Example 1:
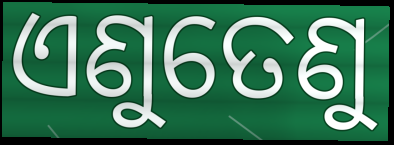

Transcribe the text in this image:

ଏଣୁତେଣୁ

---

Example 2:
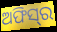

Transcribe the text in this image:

ଅଫିସ୍‌ର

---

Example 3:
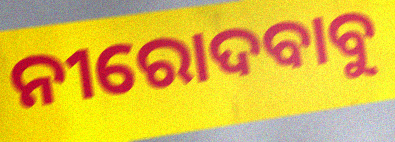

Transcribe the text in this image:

ନୀରୋଦବାବୁ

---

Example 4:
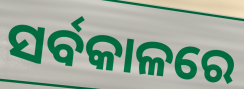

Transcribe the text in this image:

ସର୍ବକାଳରେ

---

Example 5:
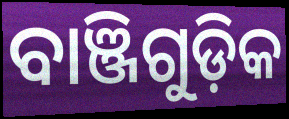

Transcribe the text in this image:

ବାଞ୍ଜିଗୁଡ଼ିକ